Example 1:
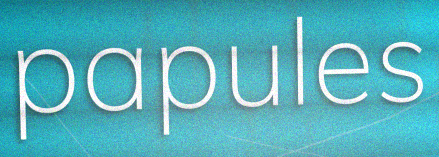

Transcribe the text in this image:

papules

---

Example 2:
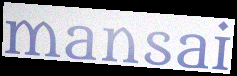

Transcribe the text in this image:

mansai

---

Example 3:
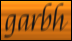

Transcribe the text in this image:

garbh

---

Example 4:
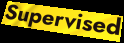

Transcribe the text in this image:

Supervised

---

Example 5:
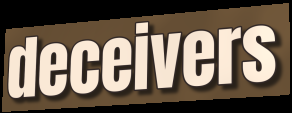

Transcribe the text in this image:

deceivers